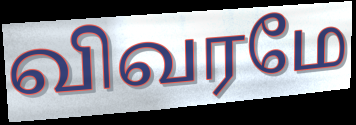
விவரமே